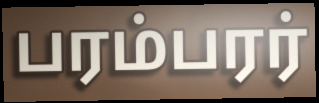
பரம்பரர்